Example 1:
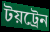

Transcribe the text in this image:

টয়ট্রেন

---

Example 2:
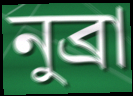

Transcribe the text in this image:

নুব্রা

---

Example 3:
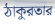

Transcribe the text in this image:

ঠাকুরতার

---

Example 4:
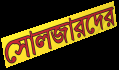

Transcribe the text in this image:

সোলজারদের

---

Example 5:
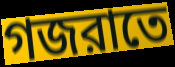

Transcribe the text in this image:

গজরাতে